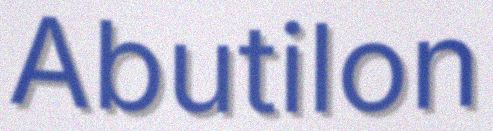
Abutilon